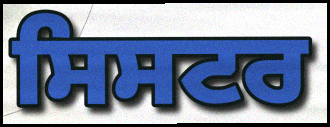
ਸਿਸਟਰ